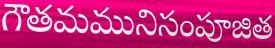
గౌతమమునిసంపూజిత